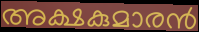
അക്ഷകുമാരൻ